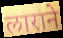
लाराने